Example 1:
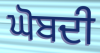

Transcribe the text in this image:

ਘੋਬਦੀ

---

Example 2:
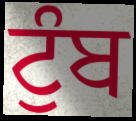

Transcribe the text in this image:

ਟੁੰਬ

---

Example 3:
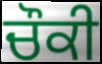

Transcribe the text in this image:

ਚੌਕੀ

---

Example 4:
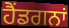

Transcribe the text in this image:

ਹੈਂਡਗਨਾਂ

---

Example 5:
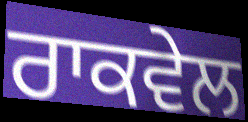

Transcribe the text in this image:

ਰਾਕਵੇਲ